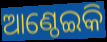
ଆଣ୍ଠେଇକି